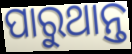
ପାରୁଥାନ୍ତ